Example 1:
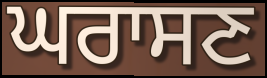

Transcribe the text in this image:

ਘਰਾਸਣ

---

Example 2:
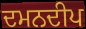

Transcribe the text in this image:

ਦਮਨਦੀਪ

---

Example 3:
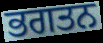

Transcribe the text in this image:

ਭਗਤਨ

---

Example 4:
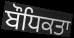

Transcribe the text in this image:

ਬੌਧਿਕਤਾ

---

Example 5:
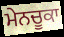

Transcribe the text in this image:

ਮੇਨਚੂਕਾ